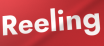
Reeling